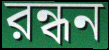
রন্ধন